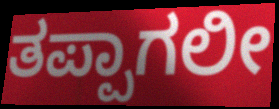
ತಪ್ಪಾಗಲೀ